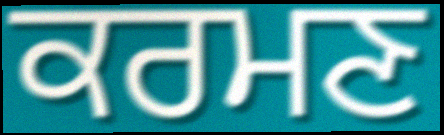
ਕਰਮਣ